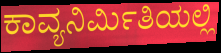
ಕಾವ್ಯನಿರ್ಮಿತಿಯಲ್ಲಿ